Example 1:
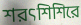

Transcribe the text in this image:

শরৎশিশিরে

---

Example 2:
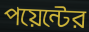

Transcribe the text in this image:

পয়েন্টের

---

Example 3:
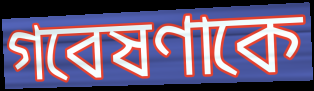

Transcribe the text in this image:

গবেষণাকে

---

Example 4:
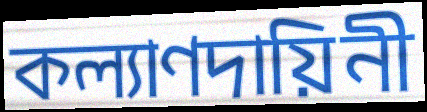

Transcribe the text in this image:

কল্যাণদায়িনী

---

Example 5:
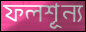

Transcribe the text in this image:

ফলশূন্য